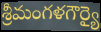
శ్రీమంగళగౌర్యై